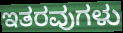
ಇತರವುಗಳು